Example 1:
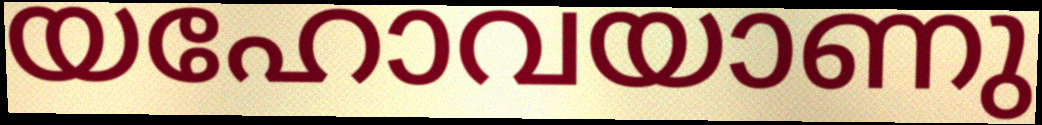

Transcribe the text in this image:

യഹോവയാണു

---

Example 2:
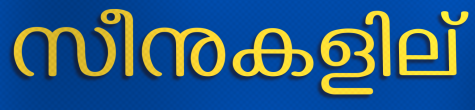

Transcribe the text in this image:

സീനുകളില്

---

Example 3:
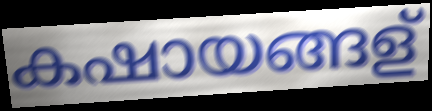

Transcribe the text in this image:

കഷായങ്ങള്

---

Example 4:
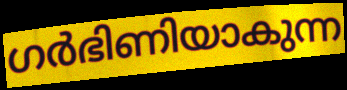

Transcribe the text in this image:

ഗർഭിണിയാകുന്ന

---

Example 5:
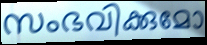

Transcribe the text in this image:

സംഭവിക്കുമോ